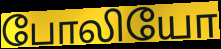
போலியோ